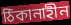
ঠিকানাহীন